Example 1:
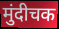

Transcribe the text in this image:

मुंदीचक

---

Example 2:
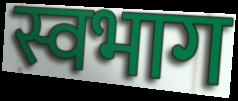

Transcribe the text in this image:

स्वभाग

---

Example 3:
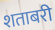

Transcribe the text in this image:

शताबरी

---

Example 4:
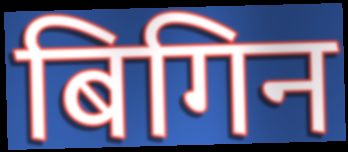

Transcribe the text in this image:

बिगिन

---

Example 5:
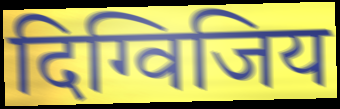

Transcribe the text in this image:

दिग्विजिय